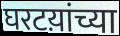
घरटय़ांच्या